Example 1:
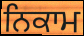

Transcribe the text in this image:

ਨਿਕਾਮ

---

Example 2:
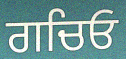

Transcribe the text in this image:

ਗਚਿਓ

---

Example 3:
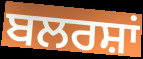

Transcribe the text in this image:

ਬਲਰਸ਼ਾਂ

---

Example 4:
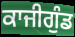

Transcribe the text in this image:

ਕਾਜੀਗੁੰਡ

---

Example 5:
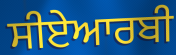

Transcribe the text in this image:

ਸੀਏਆਰਬੀ